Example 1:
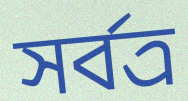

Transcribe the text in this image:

সর্বত্র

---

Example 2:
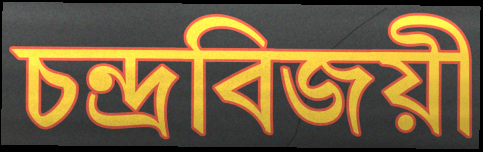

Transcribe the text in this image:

চন্দ্রবিজয়ী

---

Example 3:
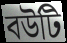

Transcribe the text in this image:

বউটি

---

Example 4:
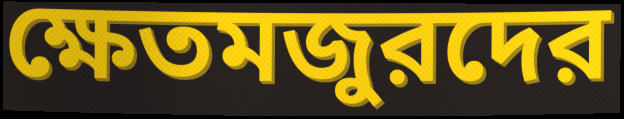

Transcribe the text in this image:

ক্ষেতমজুরদের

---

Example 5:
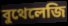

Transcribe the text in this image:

বুথেলেজি